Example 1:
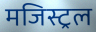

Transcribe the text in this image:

मजिस्ट्रल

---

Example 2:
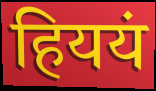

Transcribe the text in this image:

हिययं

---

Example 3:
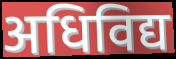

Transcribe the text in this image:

अधिविद्य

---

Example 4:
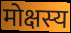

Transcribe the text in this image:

मोक्षस्य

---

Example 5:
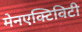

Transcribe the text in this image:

मेनएक्टिविटी